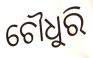
ଚୌଧୁରି